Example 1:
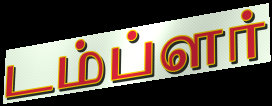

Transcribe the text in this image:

டம்ப்ளர்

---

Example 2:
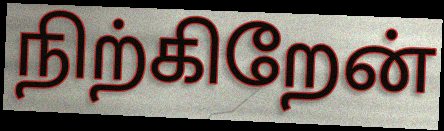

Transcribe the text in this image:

நிற்கிறேன்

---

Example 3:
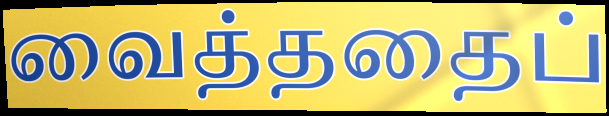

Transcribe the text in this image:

வைத்ததைப்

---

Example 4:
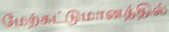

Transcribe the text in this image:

மேற்கட்டுமானத்தில்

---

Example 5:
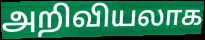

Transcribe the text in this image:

அறிவியலாக